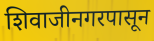
शिवाजीनगरपासून